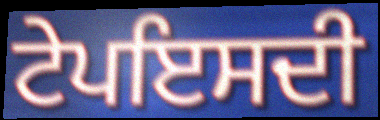
ਟੇਪਇਸਦੀ